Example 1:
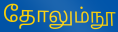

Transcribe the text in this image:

தோலும்நூ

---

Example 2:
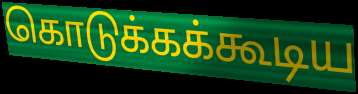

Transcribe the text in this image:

கொடுக்கக்கூடிய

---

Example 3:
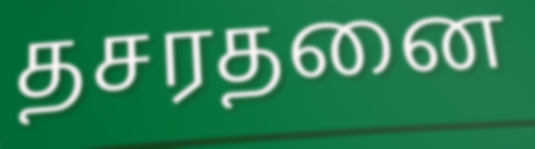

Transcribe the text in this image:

தசரதனை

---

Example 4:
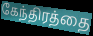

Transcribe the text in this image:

கேந்திரத்தை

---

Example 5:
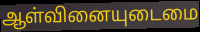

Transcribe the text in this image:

ஆள்வினையுடைமை